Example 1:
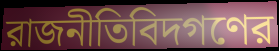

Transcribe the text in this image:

রাজনীতিবিদগণের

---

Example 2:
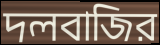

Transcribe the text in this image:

দলবাজির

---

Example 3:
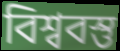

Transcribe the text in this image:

বিশ্ববস্তু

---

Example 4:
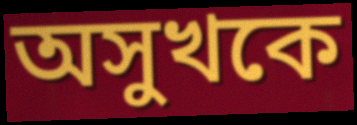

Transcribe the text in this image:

অসুখকে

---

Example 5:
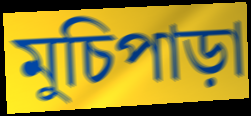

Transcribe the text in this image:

মুচিপাড়া